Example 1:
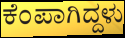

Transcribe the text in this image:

ಕೆಂಪಾಗಿದ್ದಳು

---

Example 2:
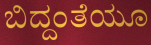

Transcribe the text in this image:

ಬಿದ್ದಂತೆಯೂ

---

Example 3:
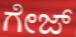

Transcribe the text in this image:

ಗೇಜ್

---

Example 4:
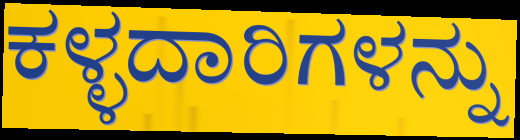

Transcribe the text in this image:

ಕಳ್ಳದಾರಿಗಳನ್ನು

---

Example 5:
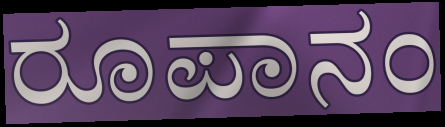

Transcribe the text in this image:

ರೂಪಾನಂ